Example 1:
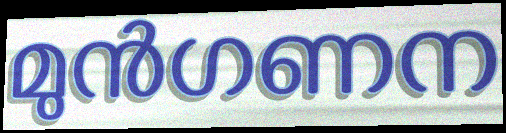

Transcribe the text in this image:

മുൻഗണന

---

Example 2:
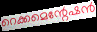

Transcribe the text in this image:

റെക്കമെന്റേഷൻ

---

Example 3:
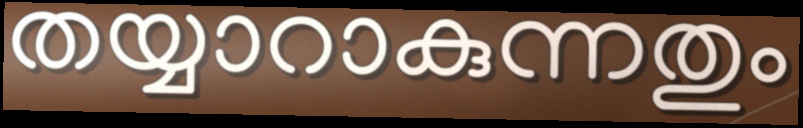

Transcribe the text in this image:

തയ്യാറാകുന്നതും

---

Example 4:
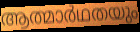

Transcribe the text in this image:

ആത്മാർഥതയും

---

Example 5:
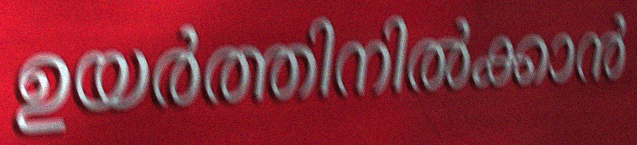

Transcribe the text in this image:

ഉയർത്തിനിൽക്കാൻ